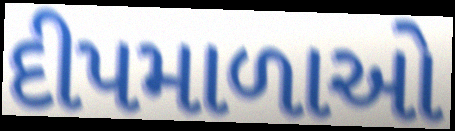
દીપમાળાઓ